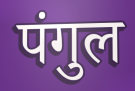
पंगुल